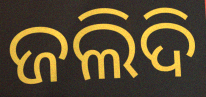
ଜଲିଦି